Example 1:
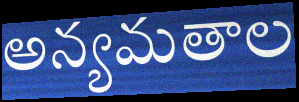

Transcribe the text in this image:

అన్యమతాల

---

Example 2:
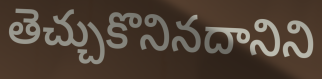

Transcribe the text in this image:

తెచ్చుకొనినదానిని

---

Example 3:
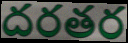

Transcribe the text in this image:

దరతర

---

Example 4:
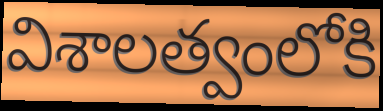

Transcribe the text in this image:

విశాలత్వంలోకి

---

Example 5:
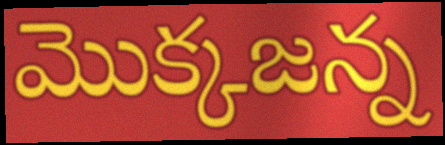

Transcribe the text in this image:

మొక్కజన్న